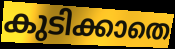
കുടിക്കാതെ